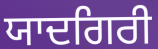
ਯਾਦਗਿਰੀ